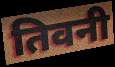
तिवनी